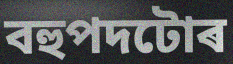
বহুপদটোৰ